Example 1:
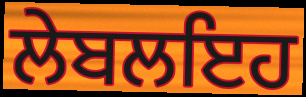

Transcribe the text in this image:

ਲੇਬਲਇਹ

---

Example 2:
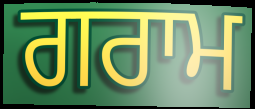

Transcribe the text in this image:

ਗਰਾਮ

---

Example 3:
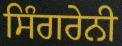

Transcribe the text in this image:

ਸਿੰਗਰੇਨੀ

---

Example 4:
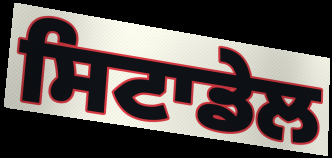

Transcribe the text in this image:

ਸਿਟਾਡੇਲ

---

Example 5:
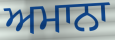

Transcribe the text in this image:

ਅਮਾਨਾ